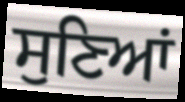
ਸੁਣਿਆਂ